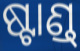
ଷ୍ଟାଣ୍ଡ୍